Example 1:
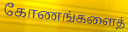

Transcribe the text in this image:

கோணங்களைத்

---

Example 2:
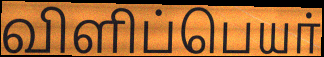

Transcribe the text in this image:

விளிப்பெயர்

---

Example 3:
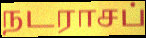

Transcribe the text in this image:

நடராசப்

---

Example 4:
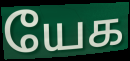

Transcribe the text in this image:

யேக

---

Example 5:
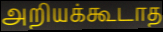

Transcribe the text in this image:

அறியக்கூடாத